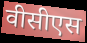
वीसीएस